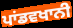
ਪਾਂਡਵਖਾਨੀ